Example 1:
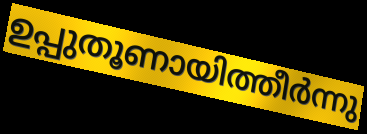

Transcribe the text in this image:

ഉപ്പുതൂണായിത്തീർന്നു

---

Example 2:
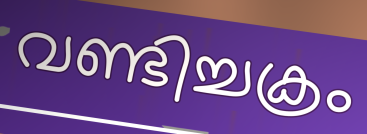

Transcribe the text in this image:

വണ്ടിച്ചക്രം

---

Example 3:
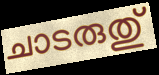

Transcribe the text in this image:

ചാടരുതു്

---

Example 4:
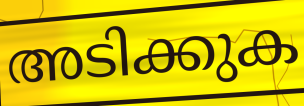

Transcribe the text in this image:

അടിക്കുക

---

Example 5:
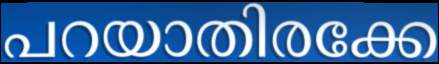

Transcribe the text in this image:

പറയാതിരക്കേ